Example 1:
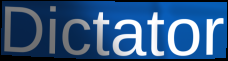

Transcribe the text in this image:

Dictator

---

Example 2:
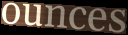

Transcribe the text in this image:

ounces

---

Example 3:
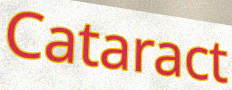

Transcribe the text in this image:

Cataract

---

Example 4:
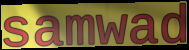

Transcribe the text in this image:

samwad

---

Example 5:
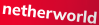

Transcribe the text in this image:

netherworld